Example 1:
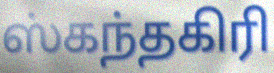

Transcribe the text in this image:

ஸ்கந்தகிரி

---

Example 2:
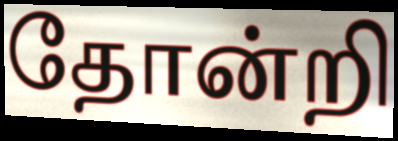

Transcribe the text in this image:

தோன்றி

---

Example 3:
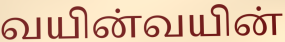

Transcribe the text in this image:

வயின்வயின்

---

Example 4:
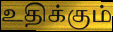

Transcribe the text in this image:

உதிக்கும்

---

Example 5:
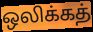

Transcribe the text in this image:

ஒலிக்கத்